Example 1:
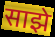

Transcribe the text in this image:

साझे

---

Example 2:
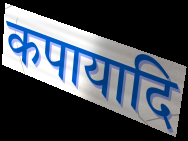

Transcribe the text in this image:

कपायादि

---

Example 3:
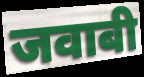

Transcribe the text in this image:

जवाबी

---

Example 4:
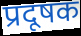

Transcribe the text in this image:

प्रदूषक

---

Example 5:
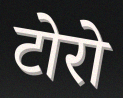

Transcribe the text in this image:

टोरो